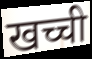
खच्ची